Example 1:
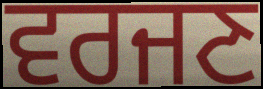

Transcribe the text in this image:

ਵਰਜਣ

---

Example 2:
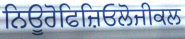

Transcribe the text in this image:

ਨਿਊਰੋਫਿਜ਼ਿਓਲੋਜੀਕਲ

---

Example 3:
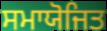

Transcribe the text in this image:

ਸਮਾਯੋਜਿਤ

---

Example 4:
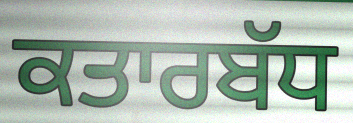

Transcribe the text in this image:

ਕਤਾਰਬੱਧ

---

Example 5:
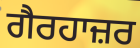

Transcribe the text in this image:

ਗੈਰਹਾਜ਼ਰ